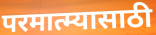
परमात्म्यासाठी